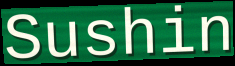
Sushin